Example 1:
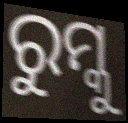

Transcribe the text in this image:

ରୁମ୍କୁ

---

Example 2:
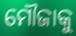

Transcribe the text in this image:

ମୌଜାକୁ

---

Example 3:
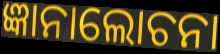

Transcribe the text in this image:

ଜ୍ଞାନାଲୋଚନା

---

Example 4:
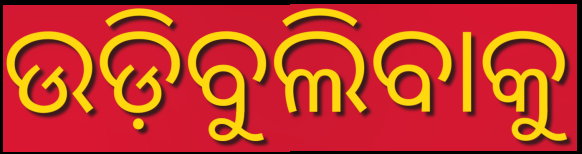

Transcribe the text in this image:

ଉଡ଼ିବୁଲିବାକୁ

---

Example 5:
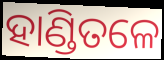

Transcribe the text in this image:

ହାଣ୍ଡିତଳେ